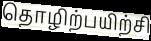
தொழிற்பயிற்சி